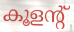
കൂളന്റ്